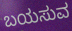
ಬಯಸುವ